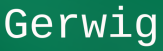
Gerwig